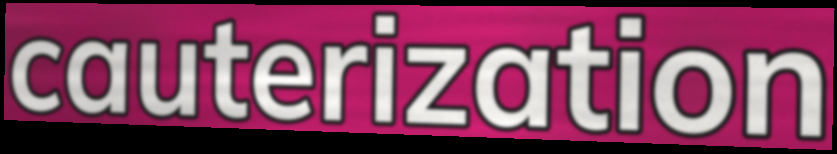
cauterization